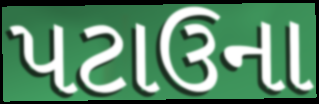
પટાઉના